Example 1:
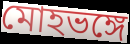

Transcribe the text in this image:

মোহভঙ্গে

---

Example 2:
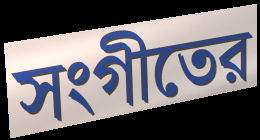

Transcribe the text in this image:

সংগীতের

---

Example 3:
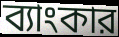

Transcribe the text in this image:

ব্যাংকার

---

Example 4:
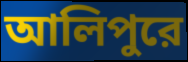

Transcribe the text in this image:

আলিপুরে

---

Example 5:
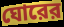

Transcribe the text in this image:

ঘোরের